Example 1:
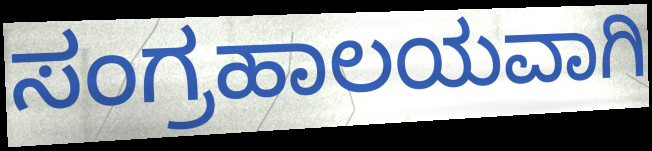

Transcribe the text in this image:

ಸಂಗ್ರಹಾಲಯವಾಗಿ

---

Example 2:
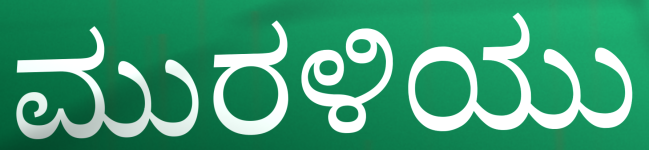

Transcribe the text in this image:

ಮುರಳಿಯು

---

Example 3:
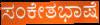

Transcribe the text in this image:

ಸಂಕೇತಭಾಷೆ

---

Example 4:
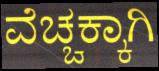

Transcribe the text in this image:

ವೆಚ್ಚಕ್ಕಾಗಿ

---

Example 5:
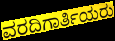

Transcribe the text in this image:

ವರದಿಗಾರ್ತಿಯರು